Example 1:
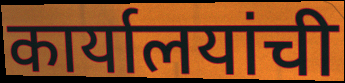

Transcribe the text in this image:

कार्यालयांची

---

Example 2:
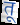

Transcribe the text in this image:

तू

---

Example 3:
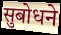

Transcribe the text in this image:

सुबोधने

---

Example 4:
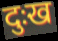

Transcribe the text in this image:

दुःख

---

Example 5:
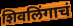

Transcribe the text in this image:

शिवलिंगाचं